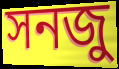
সনজু